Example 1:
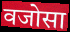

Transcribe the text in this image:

वजोसा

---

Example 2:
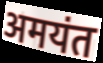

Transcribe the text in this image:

अमयंत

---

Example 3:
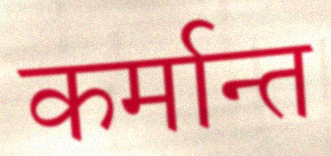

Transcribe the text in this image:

कर्मान्त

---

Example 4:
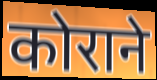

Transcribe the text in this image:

कोराने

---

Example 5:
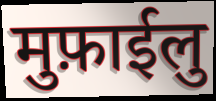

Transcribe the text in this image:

मुफ़ाईलु